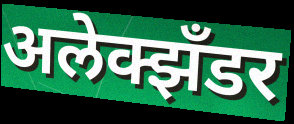
अलेक्झँडर